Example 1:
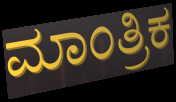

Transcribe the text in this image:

ಮಾಂತ್ರಿಕ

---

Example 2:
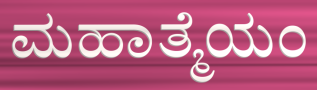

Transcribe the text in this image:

ಮಹಾತ್ಮೆಯಂ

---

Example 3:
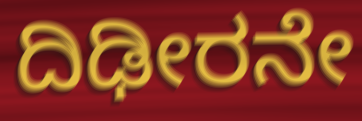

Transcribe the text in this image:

ದಿಢೀರನೇ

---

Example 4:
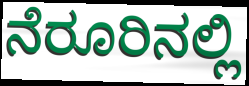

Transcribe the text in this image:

ನೆರೂರಿನಲ್ಲಿ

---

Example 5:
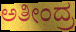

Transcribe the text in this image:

ಅತೀಂದ್ರ